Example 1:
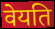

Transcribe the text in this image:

वेयति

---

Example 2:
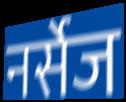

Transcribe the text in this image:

नर्सेज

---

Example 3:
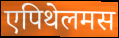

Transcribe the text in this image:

एपिथेलमस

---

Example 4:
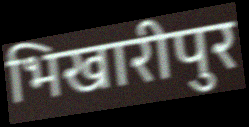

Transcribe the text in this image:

भिखारीपुर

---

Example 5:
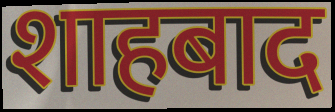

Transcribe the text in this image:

शाहबाद